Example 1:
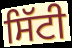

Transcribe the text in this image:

ਸਿੱਟੀ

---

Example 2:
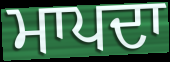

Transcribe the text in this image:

ਮਾਪਦਾ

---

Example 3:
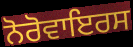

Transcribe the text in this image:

ਨੋਰੋਵਾਇਰਸ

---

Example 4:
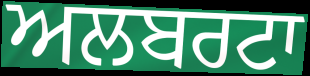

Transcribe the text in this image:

ਅਲਬਰਟਾ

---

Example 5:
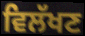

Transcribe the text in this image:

ਵਿਲੱਖਣ